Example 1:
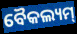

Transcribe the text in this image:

ବୈକଲ୍ୟମ୍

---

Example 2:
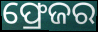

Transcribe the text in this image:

ଫ୍ରେଜର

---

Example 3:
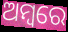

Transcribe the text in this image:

ଅମ୍ବରେ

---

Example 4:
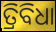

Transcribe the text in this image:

ତ୍ରିବିଧା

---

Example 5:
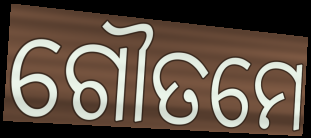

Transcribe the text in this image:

ଗୌତମେ